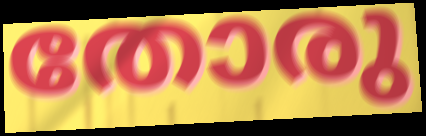
തോരു